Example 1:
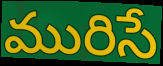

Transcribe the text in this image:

మురిసే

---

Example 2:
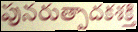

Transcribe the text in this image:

పునరుత్పాదకశక్తి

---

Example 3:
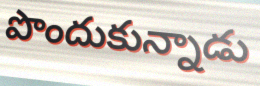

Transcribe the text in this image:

పొందుకున్నాడు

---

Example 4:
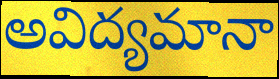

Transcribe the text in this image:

అవిద్యమానా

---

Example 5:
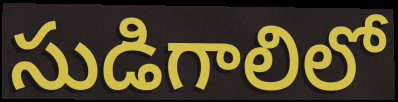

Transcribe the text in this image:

సుడిగాలిలో